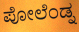
ಪೋಲೆಂಡ್ನ